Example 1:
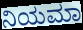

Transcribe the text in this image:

ನಿಯಮಾ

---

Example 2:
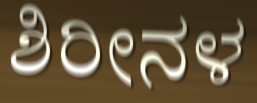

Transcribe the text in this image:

ಶಿರೀನಳ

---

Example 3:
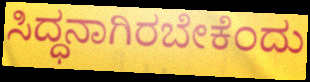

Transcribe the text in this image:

ಸಿದ್ಧನಾಗಿರಬೇಕೆಂದು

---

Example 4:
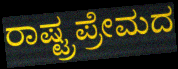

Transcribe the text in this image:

ರಾಷ್ಟ್ರಪ್ರೇಮದ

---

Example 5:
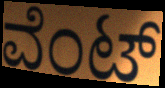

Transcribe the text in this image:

ವೆಂಟ್